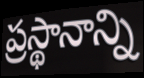
ప్రస్థానాన్ని